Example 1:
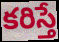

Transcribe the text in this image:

కరిస్తే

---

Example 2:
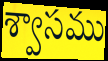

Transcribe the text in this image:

శ్వాసము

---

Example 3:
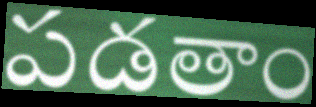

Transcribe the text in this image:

పడతాం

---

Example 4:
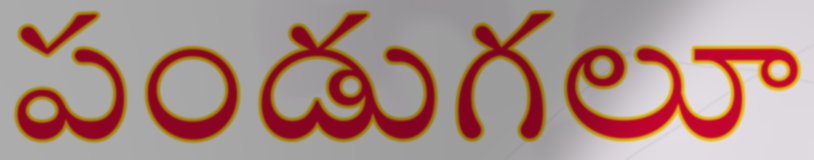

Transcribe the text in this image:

పండుగలూ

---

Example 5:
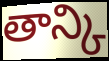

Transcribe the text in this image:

తాన్కి